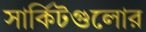
সার্কিটগুলোর